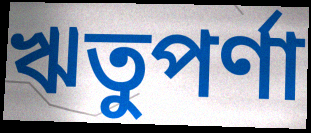
ঋতুপর্ণা